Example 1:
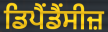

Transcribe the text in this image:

ਡਿਪੈਂਡੈਂਸੀਜ਼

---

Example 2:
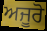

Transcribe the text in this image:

ਅਜੂਰੋ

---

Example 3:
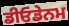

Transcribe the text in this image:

ਡੀਓਡੇਨਮ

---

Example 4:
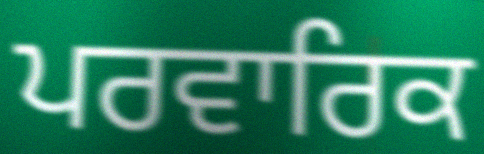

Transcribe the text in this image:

ਪਰਵਾਰਿਕ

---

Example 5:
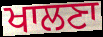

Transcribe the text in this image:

ਖਾਲਣਾ